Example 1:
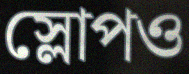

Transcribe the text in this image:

স্লোপও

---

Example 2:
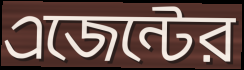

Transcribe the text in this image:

এজেন্টের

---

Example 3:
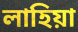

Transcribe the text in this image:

লাহিয়া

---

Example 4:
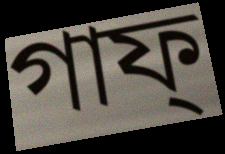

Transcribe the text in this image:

গাফ্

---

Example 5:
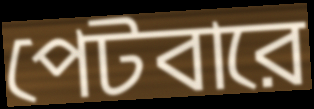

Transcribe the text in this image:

পেটবারে